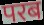
परब